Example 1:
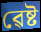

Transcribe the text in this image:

ৱেষ্ট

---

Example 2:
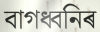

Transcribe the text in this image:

বাগধ্বনিৰ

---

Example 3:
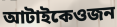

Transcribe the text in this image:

আটাইকেওজন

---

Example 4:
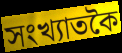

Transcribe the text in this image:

সংখ্যাতকৈ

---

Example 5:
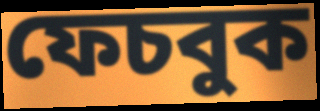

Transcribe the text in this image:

ফেচবুক